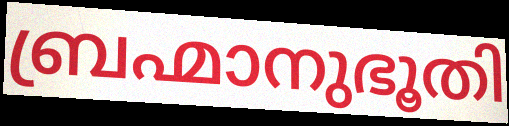
ബ്രഹ്മാനുഭൂതി